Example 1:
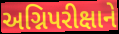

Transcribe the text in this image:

અગ્નિપરીક્ષાને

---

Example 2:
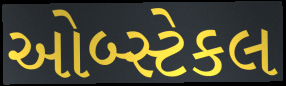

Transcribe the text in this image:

ઓબ્સ્ટેકલ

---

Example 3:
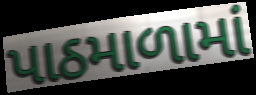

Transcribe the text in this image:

પાઠમાળામાં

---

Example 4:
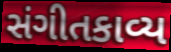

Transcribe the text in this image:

સંગીતકાવ્ય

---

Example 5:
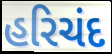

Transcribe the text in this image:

હરિચંદ